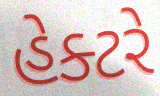
હેક્ટરે